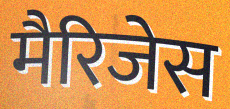
मैरिजेस